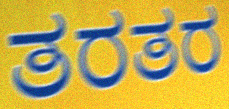
ತರತರ